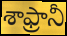
శాఫ్రానీ